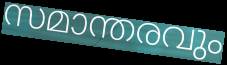
സമാന്തരവും